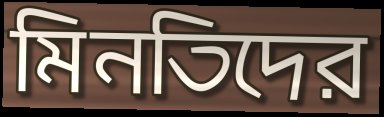
মিনতিদের